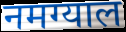
नमग्याल